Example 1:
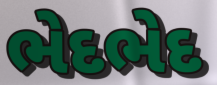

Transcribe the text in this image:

ભેદભેદ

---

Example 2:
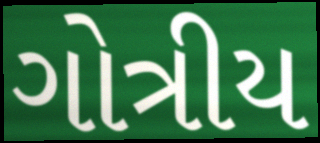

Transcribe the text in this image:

ગોત્રીય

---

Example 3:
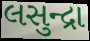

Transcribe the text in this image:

લસુન્દ્રા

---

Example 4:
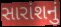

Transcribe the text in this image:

સારાંશનું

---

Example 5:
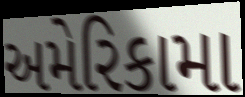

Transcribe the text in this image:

અમેરિકામા